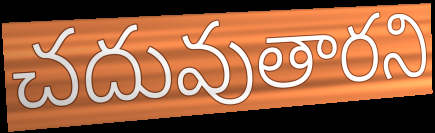
చదువుతారని